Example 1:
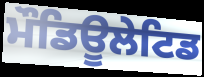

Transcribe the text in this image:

ਮੌਡਿਊਲੇਟਿਡ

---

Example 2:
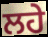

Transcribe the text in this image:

ਲਹੇ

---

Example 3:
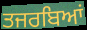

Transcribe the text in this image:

ਤਜਰਬਿਆਂ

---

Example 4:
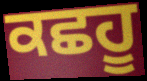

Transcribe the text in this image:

ਕਛਹੂ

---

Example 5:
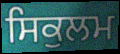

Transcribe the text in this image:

ਸਿਕੁਲਮ